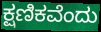
ಕ್ಷಣಿಕವೆಂದು